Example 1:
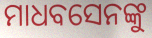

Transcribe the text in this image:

ମାଧବସେନଙ୍କୁ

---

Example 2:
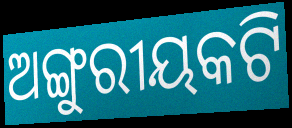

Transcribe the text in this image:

ଅଙ୍ଗୁରୀୟକଟି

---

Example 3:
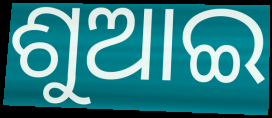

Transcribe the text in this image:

ଶୁଆଇ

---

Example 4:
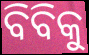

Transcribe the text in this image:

ବିବିକୁ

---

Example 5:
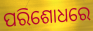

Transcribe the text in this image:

ପରିଶୋଧରେ